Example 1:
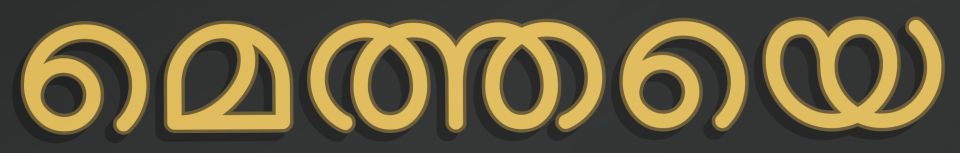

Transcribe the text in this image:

മെത്തയെ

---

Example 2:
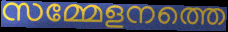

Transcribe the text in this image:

സമ്മേളനത്തെ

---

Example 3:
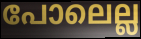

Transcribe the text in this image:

പോലെല്ല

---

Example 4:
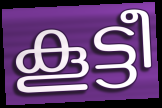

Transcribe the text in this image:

കൂട്ടീ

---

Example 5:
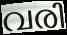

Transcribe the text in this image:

വരി